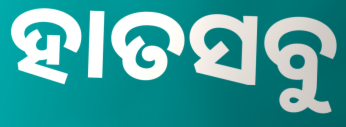
ହାତସବୁ